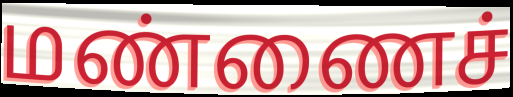
மண்ணைச்